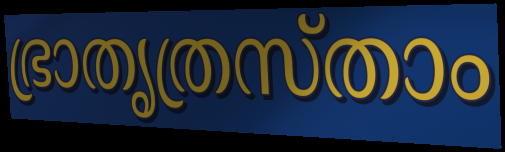
ഭ്രാതൃത്രസ്താം